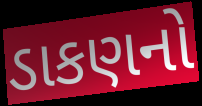
ડાકણનો